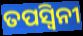
ତପସ୍ଵିନୀ